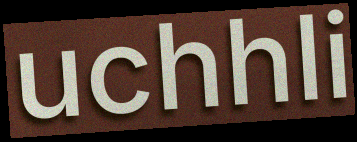
uchhli